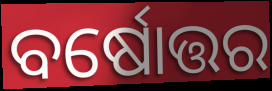
ବର୍ଷୋତ୍ତର